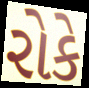
રોકે